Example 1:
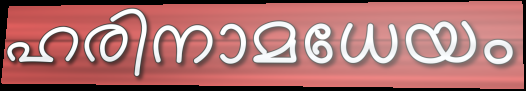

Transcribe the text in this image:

ഹരിനാമധേയം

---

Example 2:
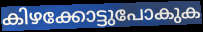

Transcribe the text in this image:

കിഴക്കോട്ടുപോകുക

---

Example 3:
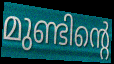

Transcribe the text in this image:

മുണ്ടിന്റെ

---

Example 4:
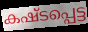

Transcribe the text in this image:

കഷ്ടപ്പെട്ട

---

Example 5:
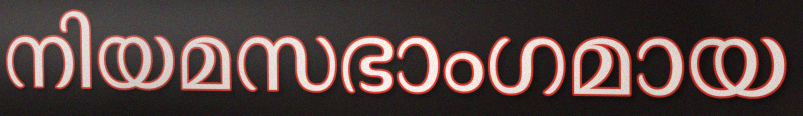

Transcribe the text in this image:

നിയമസഭാംഗമായ